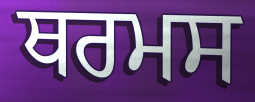
ਥਰਮਸ